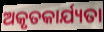
ଅକୃତକାର୍ଯ୍ୟତା